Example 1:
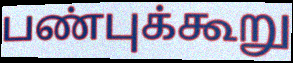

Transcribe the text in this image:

பண்புக்கூறு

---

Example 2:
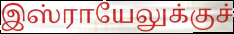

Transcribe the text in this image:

இஸ்ராயேலுக்குச்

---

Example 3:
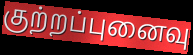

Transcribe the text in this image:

குற்றப்புனைவு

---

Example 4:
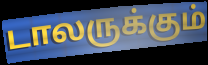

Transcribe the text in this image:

டாலருக்கும்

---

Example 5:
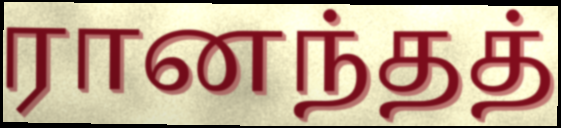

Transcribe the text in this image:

ரானந்தத்